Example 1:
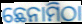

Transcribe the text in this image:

ଛେନାମିଠା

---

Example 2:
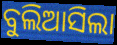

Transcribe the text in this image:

ବୁଲିଆସିଲା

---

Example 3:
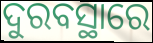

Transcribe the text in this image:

ଦୁରବସ୍ଥାରେ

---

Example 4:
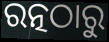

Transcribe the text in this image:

ରତ୍ନଠାରୁ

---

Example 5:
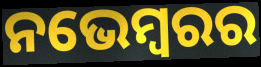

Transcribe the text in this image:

ନଭେମ୍ବରର